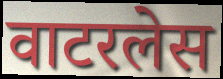
वाटरलेस